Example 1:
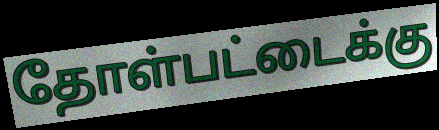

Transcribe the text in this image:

தோள்பட்டைக்கு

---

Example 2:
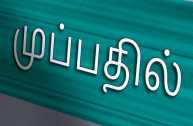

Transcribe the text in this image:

முப்பதில்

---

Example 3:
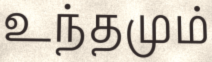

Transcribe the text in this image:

உந்தமும்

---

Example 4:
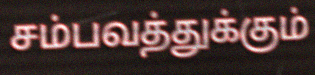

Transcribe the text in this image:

சம்பவத்துக்கும்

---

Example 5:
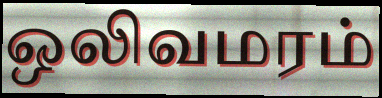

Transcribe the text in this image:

ஒலிவமரம்